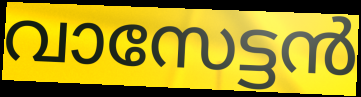
വാസേട്ടൻ